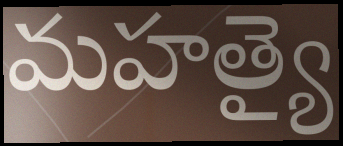
మహత్యై